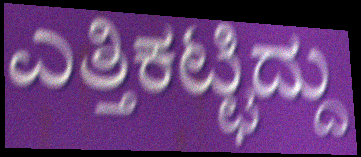
ಎತ್ತಿಕಟ್ಟಿದ್ದು